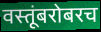
वस्तूंबरोबरच